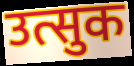
उत्सुक